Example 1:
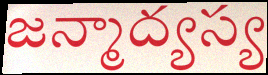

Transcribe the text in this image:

జన్మాద్యస్య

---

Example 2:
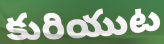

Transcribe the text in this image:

కురియుట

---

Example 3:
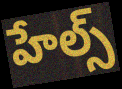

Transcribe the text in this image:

హేల్స్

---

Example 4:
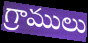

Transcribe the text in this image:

గ్రాములు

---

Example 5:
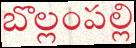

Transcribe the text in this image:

బొల్లంపల్లి